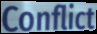
Conflict